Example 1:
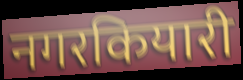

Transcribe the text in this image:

नगरकियारी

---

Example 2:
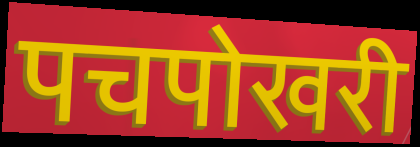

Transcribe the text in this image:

पचपोखरी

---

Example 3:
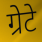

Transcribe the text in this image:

ग्रेटे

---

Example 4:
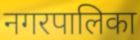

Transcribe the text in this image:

नगरपालिका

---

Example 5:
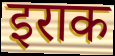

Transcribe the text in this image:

इराक